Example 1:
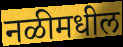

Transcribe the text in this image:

नळीमधील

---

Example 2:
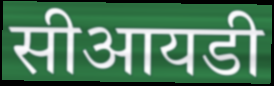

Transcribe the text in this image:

सीआयडी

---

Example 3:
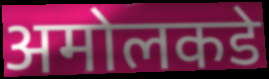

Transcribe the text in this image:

अमोलकडे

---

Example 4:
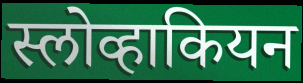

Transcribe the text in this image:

स्लोव्हाकियन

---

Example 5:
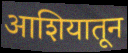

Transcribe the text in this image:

आशियातून